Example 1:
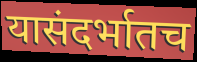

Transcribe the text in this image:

यासंदर्भातच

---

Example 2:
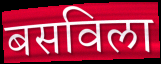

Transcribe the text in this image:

बसविला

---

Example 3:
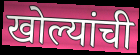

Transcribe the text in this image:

खोल्यांची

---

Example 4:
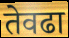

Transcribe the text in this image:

तेवढा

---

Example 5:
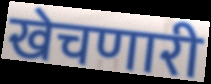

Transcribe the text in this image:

खेचणारी